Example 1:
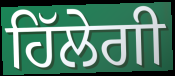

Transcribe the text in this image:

ਹਿੱਲੇਗੀ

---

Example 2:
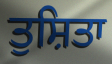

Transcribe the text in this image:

ਤੁਸ਼ਿਤਾ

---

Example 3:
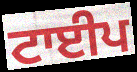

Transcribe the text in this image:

ਟਾਈਪ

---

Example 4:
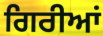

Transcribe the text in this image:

ਗਿਰੀਆਂ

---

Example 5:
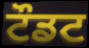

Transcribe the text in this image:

ਟੌਡਟ